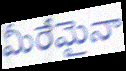
మీరేమైనా